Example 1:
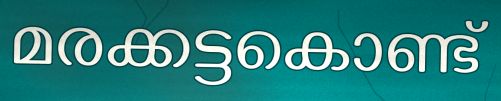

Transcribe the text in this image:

മരക്കട്ടകൊണ്ട്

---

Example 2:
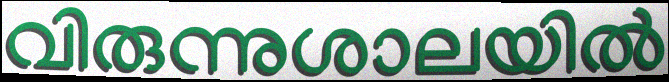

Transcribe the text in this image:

വിരുന്നുശാലയിൽ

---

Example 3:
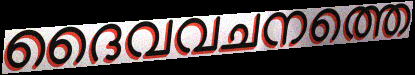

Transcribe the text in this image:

ദൈവവചനത്തെ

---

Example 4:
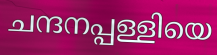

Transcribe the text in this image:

ചന്ദനപ്പള്ളിയെ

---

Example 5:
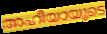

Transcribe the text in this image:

അഹീയായുടെ